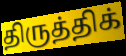
திருத்திக்